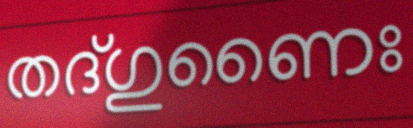
തദ്ഗുണൈഃ